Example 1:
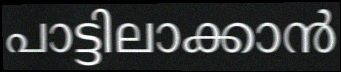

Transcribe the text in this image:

പാട്ടിലാക്കാൻ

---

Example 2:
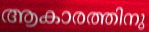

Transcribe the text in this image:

ആകാരത്തിനു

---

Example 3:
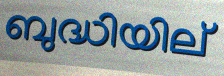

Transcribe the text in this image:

ബുദ്ധിയില്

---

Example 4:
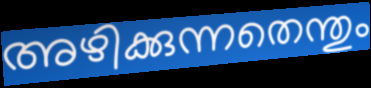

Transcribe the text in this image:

അഴിക്കുന്നതെന്തും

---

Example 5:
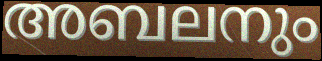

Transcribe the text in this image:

അബലനും